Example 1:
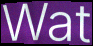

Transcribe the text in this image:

Wat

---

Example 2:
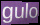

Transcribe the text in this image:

gulo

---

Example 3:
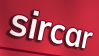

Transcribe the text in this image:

sircar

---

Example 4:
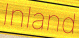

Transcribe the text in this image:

Inland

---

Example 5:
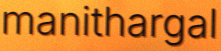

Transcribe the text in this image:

manithargal